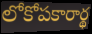
లోకోపకారార్థ